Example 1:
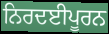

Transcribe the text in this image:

ਨਿਰਦਈਪੂਰਨ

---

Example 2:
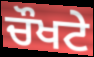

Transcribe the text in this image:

ਚੌਖਟੇ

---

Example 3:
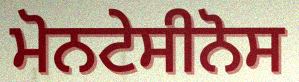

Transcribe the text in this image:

ਮੋਨਟੇਸੀਨੋਸ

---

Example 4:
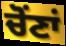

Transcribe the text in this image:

ਚੋਂਣਾਂ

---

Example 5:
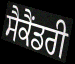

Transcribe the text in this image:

ਸੈਕੈਂਡਰੀ